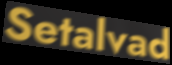
Setalvad